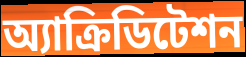
অ্যাক্রিডিটেশন